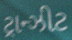
ટ્રાન્ઝીટ